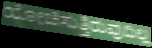
ಯೋಚಿಸುತ್ತಿರುವುದಿಲ್ಲ